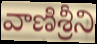
వాణిశ్రీని